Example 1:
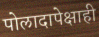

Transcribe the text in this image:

पोलादापेक्षाही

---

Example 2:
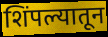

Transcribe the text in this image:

शिंपल्यातून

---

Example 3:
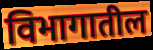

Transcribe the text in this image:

विभागातील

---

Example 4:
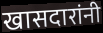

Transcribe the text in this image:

खासदारांनी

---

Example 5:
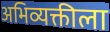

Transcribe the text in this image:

अभिव्यक्तीला